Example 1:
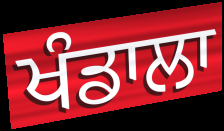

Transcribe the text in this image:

ਖੰਡਾਲਾ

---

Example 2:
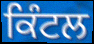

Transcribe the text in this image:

ਕਿੰਟਲ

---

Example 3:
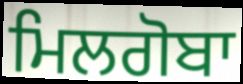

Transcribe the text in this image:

ਮਿਲਗੋਬਾ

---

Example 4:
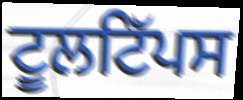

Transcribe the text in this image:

ਟੂਲਟਿੱਪਸ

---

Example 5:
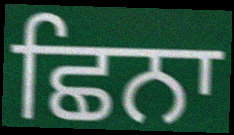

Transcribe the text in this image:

ਛਿਨਾ